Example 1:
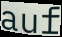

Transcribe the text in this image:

auf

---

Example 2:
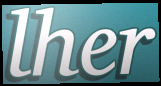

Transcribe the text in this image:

lher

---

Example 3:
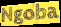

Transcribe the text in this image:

Ngoba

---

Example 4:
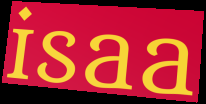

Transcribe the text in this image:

isaa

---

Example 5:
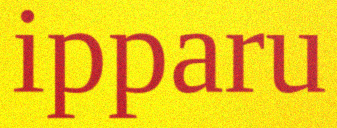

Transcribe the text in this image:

ipparu